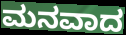
ಮನವಾದ